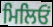
ਮਿਲਿਓਂ